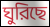
ঘুরিছে